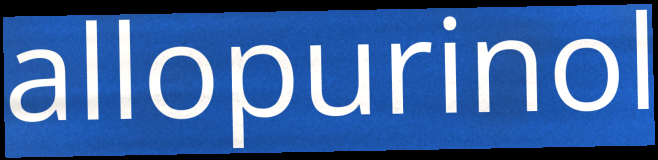
allopurinol